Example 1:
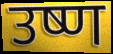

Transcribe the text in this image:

उष्ण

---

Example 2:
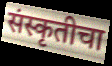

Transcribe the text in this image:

संस्कृतीचा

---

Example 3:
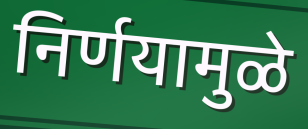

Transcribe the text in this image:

निर्णयामुळे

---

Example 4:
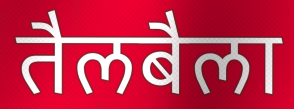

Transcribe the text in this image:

तैलबैला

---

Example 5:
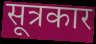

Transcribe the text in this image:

सूत्रकार